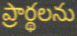
ప్రార్థలను